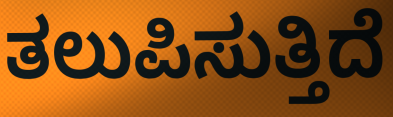
ತಲುಪಿಸುತ್ತಿದೆ